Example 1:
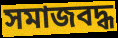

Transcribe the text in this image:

সমাজবদ্ধ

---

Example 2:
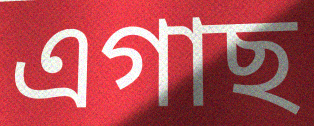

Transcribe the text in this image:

এগাছ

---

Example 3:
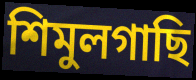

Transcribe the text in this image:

শিমুলগাছি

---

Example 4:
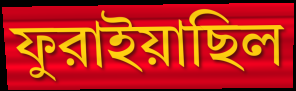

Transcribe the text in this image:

ফুরাইয়াছিল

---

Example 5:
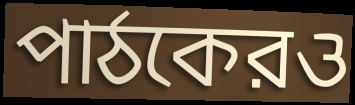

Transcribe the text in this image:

পাঠকেরও